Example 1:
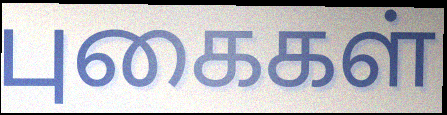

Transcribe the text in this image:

புகைகள்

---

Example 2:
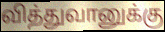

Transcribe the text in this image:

வித்துவானுக்கு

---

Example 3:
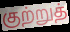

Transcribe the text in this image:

குற்றுத்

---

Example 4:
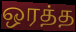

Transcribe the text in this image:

ஒரத்த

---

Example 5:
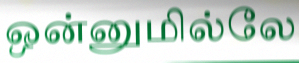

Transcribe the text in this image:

ஒன்னுமில்லே